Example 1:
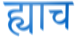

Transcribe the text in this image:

ह्याच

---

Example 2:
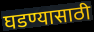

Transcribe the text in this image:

घडण्यासाठी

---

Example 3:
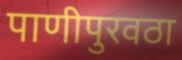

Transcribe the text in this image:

पाणीपुरवठा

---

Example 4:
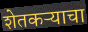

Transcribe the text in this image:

शेतकऱ्याचा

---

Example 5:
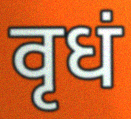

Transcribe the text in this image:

वृधं